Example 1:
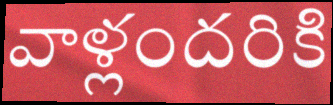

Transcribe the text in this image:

వాళ్లందరికి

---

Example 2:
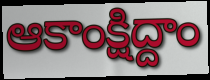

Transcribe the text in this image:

ఆకాంక్షిద్దాం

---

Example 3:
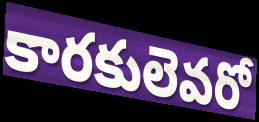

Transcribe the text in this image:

కారకులెవరో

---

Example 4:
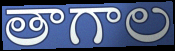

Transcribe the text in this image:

తాగాల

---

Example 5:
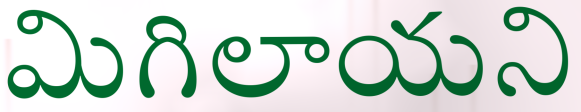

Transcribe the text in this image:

మిగిలాయని